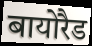
बायोरैड